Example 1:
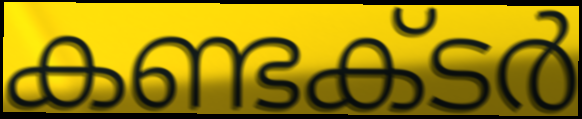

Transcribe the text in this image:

കണ്ടക്‌ടർ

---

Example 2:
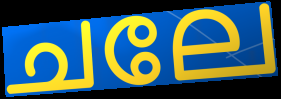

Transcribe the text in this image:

ചലേ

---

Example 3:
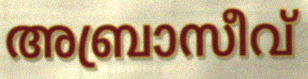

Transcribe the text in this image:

അബ്രാസീവ്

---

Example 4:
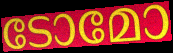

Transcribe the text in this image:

ടോമോ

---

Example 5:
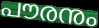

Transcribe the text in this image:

പൗരനും